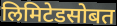
लिमिटेडसोबत